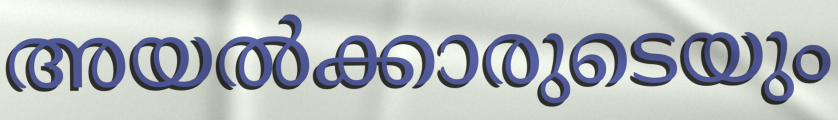
അയൽക്കാരുടെയും